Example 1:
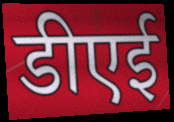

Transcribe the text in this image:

डीएई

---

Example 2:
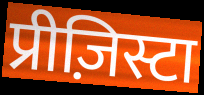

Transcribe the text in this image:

प्रीज़िस्टा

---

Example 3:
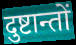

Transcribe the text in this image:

दुष्टान्तों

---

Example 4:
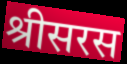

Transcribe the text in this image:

श्रीसरस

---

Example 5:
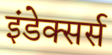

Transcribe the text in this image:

इंडेक्सर्स